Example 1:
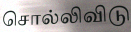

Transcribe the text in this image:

சொல்லிவிடு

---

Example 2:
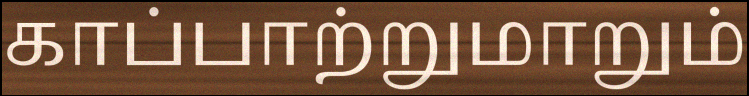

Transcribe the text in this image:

காப்பாற்றுமாறும்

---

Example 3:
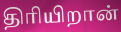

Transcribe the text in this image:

திரியிறான்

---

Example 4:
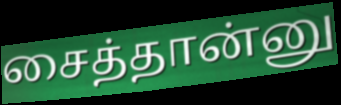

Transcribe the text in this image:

சைத்தான்னு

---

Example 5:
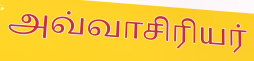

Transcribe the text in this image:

அவ்வாசிரியர்